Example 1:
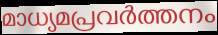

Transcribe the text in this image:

മാധ്യമപ്രവർത്തനം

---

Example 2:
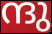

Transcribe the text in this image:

ന്ദു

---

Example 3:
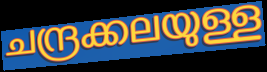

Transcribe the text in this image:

ചന്ദ്രക്കലയുള്ള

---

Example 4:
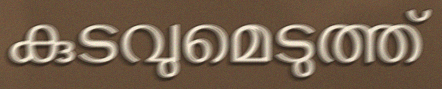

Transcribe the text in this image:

കുടവുമെടുത്ത്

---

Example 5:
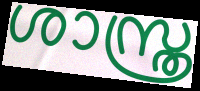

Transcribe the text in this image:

ശാസ്ത്ര